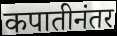
कपातीनंतर